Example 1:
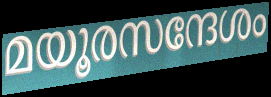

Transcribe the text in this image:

മയൂരസന്ദേശം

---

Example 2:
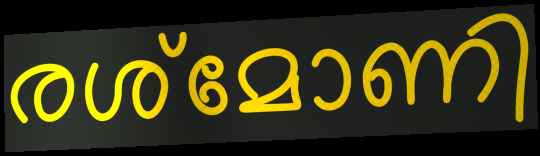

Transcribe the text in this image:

രശ്മോണി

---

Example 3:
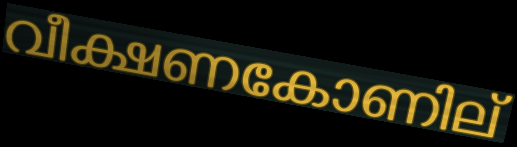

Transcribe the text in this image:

വീക്ഷണകോണില്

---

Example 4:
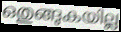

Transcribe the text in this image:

ഒതുങ്ങുകയില്ല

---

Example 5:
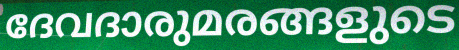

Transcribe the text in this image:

ദേവദാരുമരങ്ങളുടെ